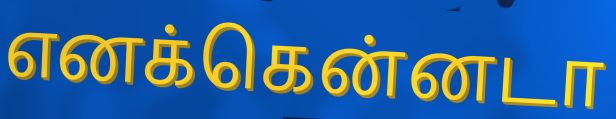
எனக்கென்னடா